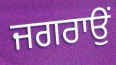
ਜਗਰਾਉਂ